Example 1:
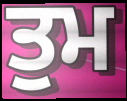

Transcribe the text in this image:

ਤੁਮ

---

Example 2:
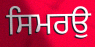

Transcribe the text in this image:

ਸਿਮਰਉ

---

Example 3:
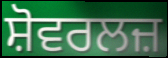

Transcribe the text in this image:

ਸ਼ੋਵਰਲਜ਼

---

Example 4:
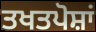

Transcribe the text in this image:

ਤਖਤਪੋਸ਼ਾਂ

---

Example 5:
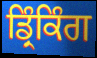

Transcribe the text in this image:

ਡ੍ਰਿੰਕਿੰਗ